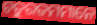
ଚତୁରତମମାନେ